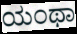
ಯಂಥಾ